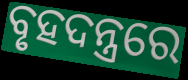
ବୃହଦନ୍ତ୍ରରେ